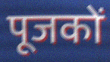
पूजकों